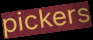
pickers